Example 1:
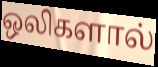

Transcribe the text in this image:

ஒலிகளால்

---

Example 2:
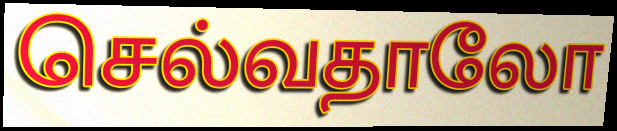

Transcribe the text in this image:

செல்வதாலோ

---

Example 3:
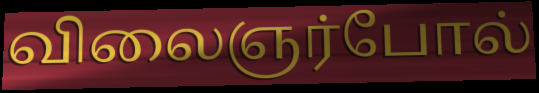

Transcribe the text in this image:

விலைஞர்போல்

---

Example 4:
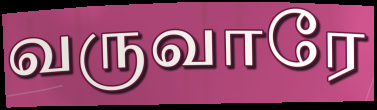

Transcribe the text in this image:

வருவாரே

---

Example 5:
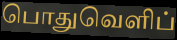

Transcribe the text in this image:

பொதுவெளிப்